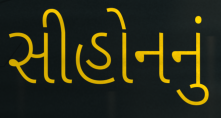
સીહોનનું